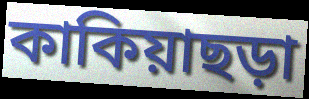
কাকিয়াছড়া